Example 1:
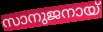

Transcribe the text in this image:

സാനുജനായ്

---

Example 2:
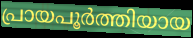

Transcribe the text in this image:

പ്രായപൂർത്തിയായ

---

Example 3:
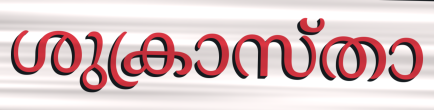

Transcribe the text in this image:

ശുക്രാസ്താ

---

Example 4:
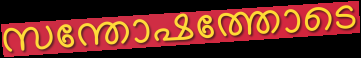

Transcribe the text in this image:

സന്തോഷത്തോടെ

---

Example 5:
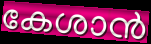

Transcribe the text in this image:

കേശാൻ